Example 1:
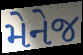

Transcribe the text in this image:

મેનેજ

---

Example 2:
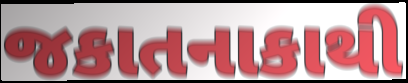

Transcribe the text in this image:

જકાતનાકાથી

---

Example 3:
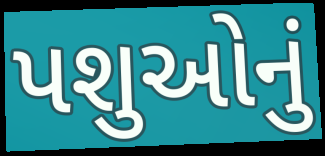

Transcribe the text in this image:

પશુઓનું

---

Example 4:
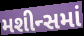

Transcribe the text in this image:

મશીન્સમાં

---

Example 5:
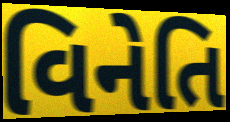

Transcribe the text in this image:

વિનેતિ